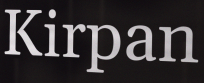
Kirpan